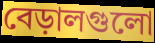
বেড়ালগুলো